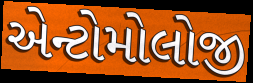
એન્ટોમોલોજી